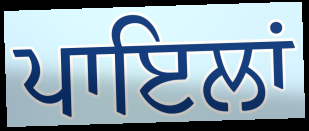
ਪਾਇਲਾਂ